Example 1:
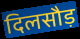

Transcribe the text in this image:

दिलसौड़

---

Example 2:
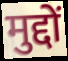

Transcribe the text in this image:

मुद्दों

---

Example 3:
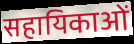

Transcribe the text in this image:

सहायिकाओं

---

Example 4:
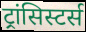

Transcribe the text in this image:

ट्रांसिस्टर्स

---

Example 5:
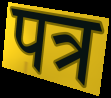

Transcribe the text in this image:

पत्र